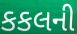
કકલની